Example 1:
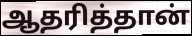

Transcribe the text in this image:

ஆதரித்தான்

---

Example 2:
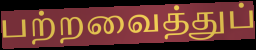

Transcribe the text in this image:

பற்றவைத்துப்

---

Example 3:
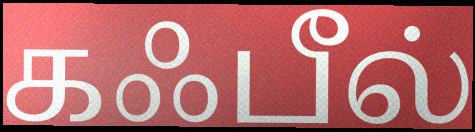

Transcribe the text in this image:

கஃபீல்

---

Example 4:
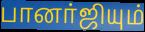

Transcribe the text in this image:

பானர்ஜியும்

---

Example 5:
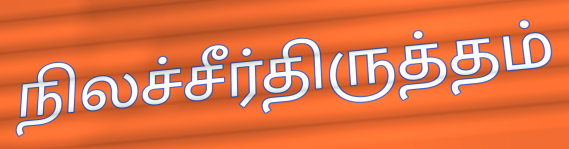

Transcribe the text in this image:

நிலச்சீர்திருத்தம்